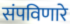
संपविणारे